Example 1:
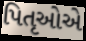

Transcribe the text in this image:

પિતૃઓએ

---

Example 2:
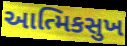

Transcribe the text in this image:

આત્મિકસુખ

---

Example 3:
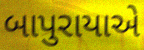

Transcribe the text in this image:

બાપુરાયાએ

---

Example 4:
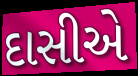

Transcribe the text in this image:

દાસીએ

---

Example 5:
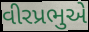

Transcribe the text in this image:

વીરપ્રભુએ